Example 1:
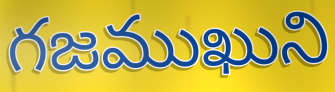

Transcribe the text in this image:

గజముఖుని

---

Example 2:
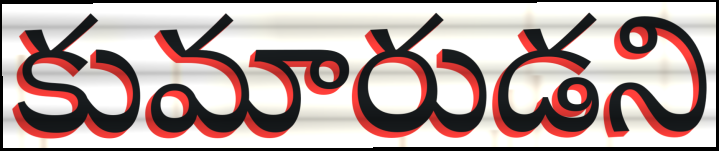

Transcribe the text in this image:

కుమారుడని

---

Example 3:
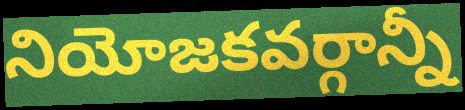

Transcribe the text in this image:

నియోజకవర్గాన్నీ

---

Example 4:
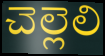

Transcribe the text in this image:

చెల్లెలి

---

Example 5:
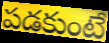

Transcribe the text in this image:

పడకుంటే